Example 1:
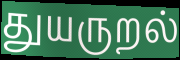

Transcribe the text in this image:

துயருறல்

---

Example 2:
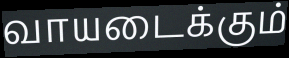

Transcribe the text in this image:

வாயடைக்கும்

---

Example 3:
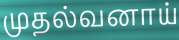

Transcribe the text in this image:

முதல்வனாய்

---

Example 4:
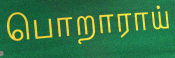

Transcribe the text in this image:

பொறாராய்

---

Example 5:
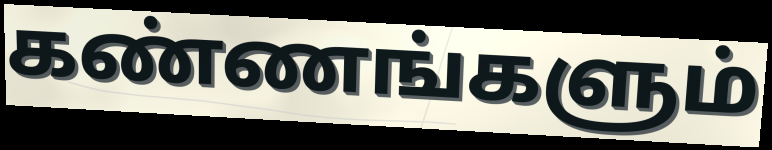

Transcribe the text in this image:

கண்ணங்களும்